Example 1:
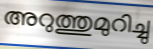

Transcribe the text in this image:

അറുത്തുമുറിച്ചു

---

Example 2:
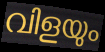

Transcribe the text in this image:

വിളയും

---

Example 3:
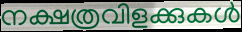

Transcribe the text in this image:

നക്ഷത്രവിളക്കുകൾ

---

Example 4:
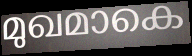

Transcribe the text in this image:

മുഖമാകെ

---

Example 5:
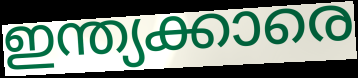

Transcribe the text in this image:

ഇന്ത്യക്കാരെ